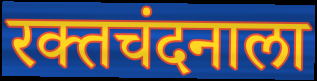
रक्तचंदनाला